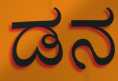
ಡನ